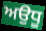
ਅਉਧੂ